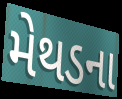
મેથડના